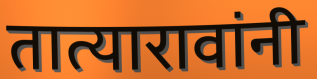
तात्यारावांनी